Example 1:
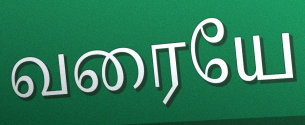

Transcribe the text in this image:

வரையே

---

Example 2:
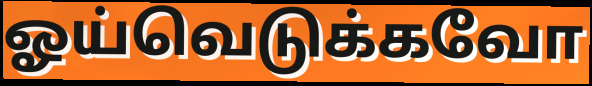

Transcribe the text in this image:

ஓய்வெடுக்கவோ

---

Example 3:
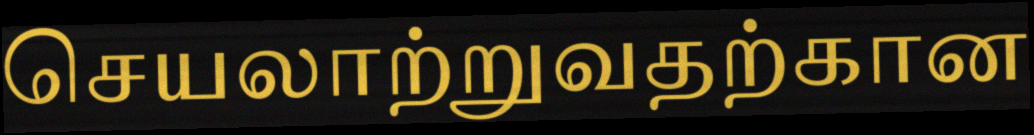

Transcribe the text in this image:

செயலாற்றுவதற்கான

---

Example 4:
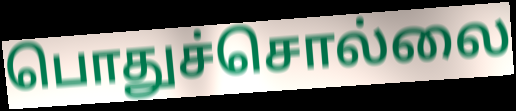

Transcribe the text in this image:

பொதுச்சொல்லை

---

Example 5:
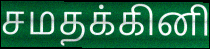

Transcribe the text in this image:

சமதக்கினி